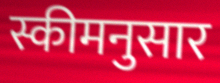
स्कीमनुसार